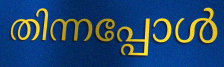
തിന്നപ്പോൾ